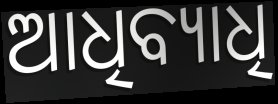
ଆଧିବ୍ୟାଧି